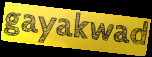
gayakwad